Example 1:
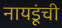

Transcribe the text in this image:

नायडूंची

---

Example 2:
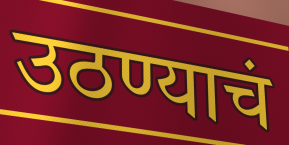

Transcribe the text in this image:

उठण्याचं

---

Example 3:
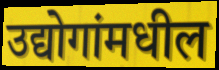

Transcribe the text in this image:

उद्योगांमधील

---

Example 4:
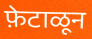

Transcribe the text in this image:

फ़ेटाळून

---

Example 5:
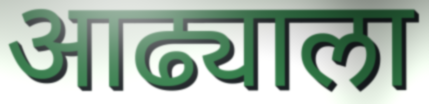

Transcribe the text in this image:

आढ्याला